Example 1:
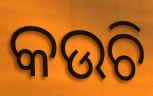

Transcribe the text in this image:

କଉଚି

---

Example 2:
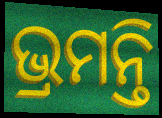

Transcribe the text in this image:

ଭ୍ରମନ୍ତି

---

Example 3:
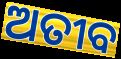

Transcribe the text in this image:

ଅତୀବ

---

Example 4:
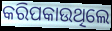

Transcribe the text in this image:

କରିପକାଉଥିଲେ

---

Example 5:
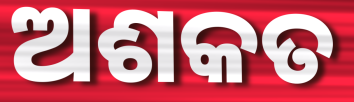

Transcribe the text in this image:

ଅଶକତ